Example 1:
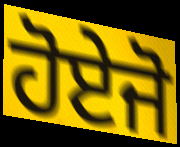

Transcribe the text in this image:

ਹੋਏਜੋ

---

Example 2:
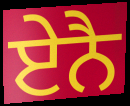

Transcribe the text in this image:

ਏਨੈ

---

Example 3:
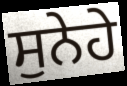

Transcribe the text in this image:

ਸੁਨੇਹੇ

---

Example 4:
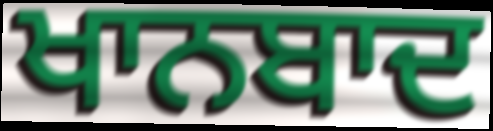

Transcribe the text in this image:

ਖਾਨਬਾਦ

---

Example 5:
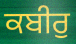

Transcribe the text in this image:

ਕਬੀਰੁ